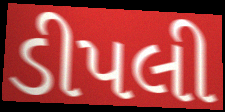
ડીપલી